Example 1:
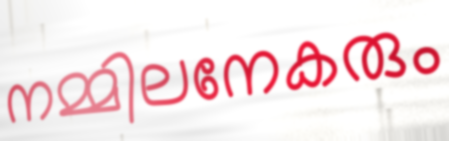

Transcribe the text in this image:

നമ്മിലനേകരും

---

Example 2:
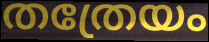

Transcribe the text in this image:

തത്രേയം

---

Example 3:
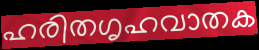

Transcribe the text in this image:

ഹരിതഗൃഹവാതക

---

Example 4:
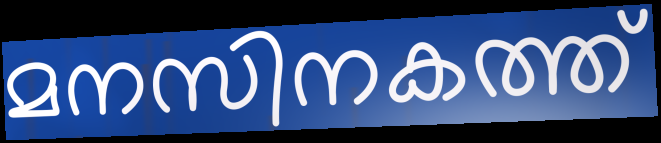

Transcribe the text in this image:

മനസിനകത്ത്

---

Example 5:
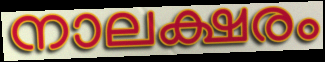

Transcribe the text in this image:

നാലക്ഷരം